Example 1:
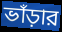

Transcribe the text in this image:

ভাঁড়ার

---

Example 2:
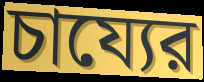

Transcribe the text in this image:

চায্যের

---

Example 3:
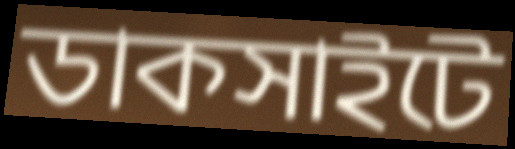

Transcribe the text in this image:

ডাকসাইটে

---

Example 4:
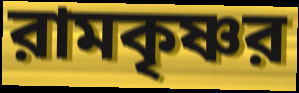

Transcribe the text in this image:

রামকৃষ্ণর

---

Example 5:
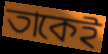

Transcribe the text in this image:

তাকেই